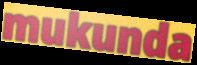
mukunda